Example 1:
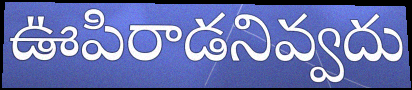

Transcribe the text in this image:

ఊపిరాడనివ్వదు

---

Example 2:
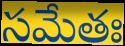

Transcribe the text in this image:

సమేతః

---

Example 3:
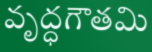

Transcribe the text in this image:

వృద్ధగౌతమి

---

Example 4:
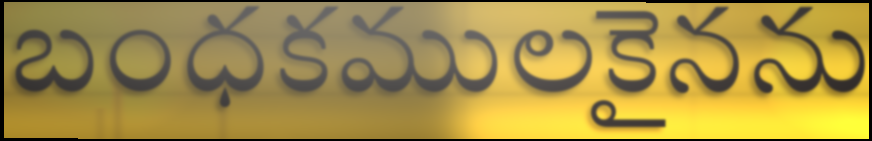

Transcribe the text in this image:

బంధకములకైనను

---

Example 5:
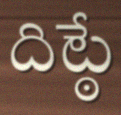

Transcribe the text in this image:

దిట్ఠే